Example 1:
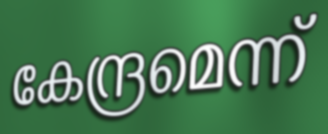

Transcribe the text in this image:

കേന്ദ്രമെന്ന്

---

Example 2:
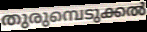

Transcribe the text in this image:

തുരുമ്പെടുക്കൽ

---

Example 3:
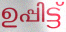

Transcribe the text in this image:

ഉപ്പിട്ട്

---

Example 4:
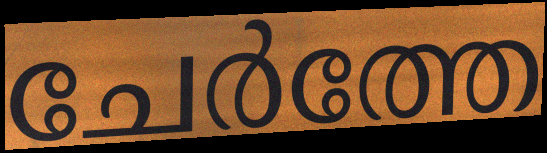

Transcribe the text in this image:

ചേർത്തേ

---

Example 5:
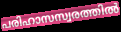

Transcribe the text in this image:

പരിഹാസസ്വരത്തിൽ